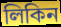
লিকিন